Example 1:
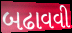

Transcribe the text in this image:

બઢાવવી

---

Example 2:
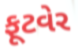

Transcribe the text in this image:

ફૂટવેર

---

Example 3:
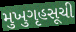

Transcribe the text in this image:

મુખુગૃહસૂચી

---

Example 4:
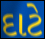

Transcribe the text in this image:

દાટે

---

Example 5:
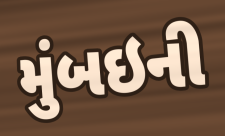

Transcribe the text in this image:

મુંબઇની